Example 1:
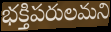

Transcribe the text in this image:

భక్తిపరులమని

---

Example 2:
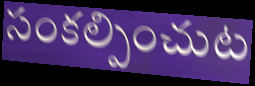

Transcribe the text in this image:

సంకల్పించుట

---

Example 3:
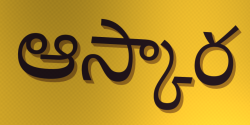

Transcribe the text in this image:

ఆస్కార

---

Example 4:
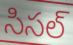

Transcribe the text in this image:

సిసల్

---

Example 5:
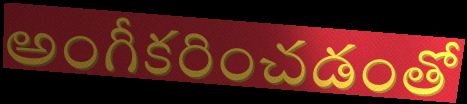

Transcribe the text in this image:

అంగీకరించడంతో